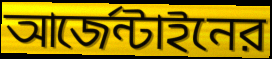
আর্জেন্টাইনের